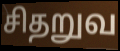
சிதறுவ